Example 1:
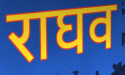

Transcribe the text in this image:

राघव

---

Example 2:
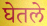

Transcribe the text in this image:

घेतले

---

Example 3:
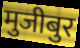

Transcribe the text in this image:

मुजीबुर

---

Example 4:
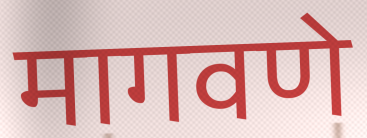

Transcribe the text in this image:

मागवणे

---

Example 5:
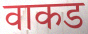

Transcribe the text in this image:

वाकड